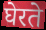
घेरते